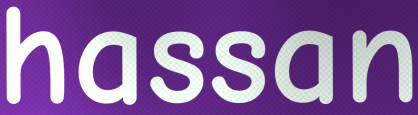
hassan